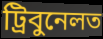
ট্ৰিবুনেলত